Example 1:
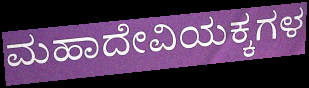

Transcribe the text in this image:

ಮಹಾದೇವಿಯಕ್ಕಗಳ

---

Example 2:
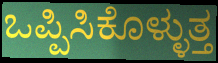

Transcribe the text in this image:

ಒಪ್ಪಿಸಿಕೊಳ್ಳುತ್ತ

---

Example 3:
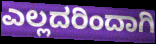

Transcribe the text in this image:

ಎಲ್ಲದರಿಂದಾಗಿ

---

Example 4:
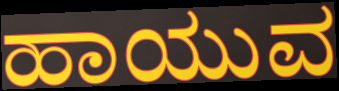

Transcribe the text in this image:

ಹಾಯುವ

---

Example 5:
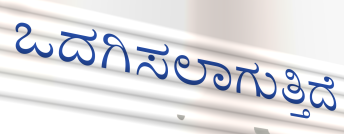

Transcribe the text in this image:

ಒದಗಿಸಲಾಗುತ್ತಿದೆ